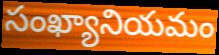
సంఖ్యానియమం